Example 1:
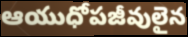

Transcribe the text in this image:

ఆయుధోపజీవులైన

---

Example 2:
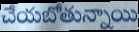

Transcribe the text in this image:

చేయబోతున్నాయి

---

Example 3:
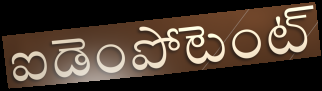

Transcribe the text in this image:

ఐడెంపోటెంట్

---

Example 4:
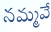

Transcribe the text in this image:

నమ్మవే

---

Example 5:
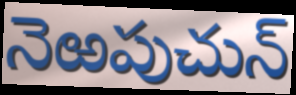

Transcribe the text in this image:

నెఱపుచున్